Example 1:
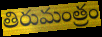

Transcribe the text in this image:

తిరుమంత్రం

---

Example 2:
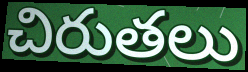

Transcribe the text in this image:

చిరుతలు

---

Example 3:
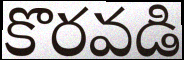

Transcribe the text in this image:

కొరవడి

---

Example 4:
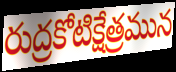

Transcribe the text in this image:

రుద్రకోటిక్షేత్రమున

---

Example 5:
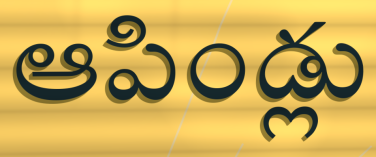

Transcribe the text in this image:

ఆపిండ్లు